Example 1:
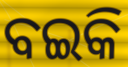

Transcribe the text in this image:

ବଇକି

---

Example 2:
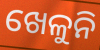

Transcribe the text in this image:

ଖେଳୁନି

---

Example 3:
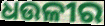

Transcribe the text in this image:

ଧଉଳୀର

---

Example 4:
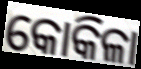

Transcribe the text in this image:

କୋକିଳା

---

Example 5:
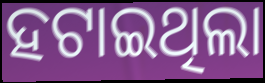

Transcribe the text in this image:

ହଟାଇଥିଲା